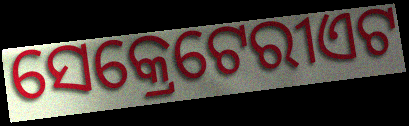
ସେକ୍ରେଟେରୀଏଟ